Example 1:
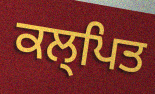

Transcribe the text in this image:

ਕਲ੍ਪਿਤ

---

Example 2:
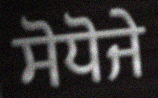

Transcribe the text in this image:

ਸੋਧੋਜੇ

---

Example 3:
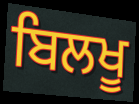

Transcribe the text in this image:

ਬਿਲਖੂ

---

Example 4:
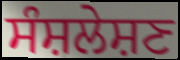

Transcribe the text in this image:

ਸੰਸ਼ਲੇਸ਼ਣ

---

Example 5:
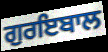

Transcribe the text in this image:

ਗੁਰਇਬਾਲ